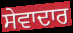
ਸੇਵਾਦਾਰ